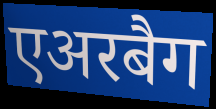
एअरबैग